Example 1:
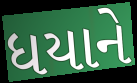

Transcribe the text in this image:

ધયાને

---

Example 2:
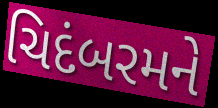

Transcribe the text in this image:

ચિદંબરમને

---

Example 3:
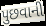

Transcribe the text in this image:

પુછવાની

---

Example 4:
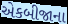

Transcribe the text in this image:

એકબીજાના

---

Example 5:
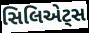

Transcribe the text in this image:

સિલિએટ્સ